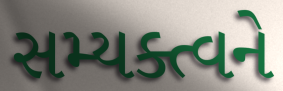
સમ્યક્ત્વને